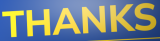
THANKS